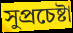
সুপ্রচেষ্টা